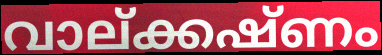
വാല്ക്കഷ്ണം